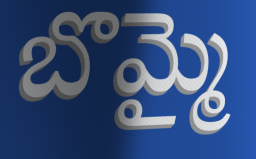
బొమ్మై